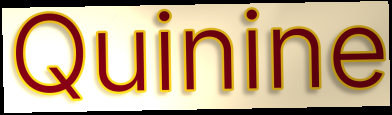
Quinine